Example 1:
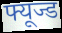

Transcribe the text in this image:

फ्यूज्ड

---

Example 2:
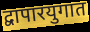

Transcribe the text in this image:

द्वापारयुगात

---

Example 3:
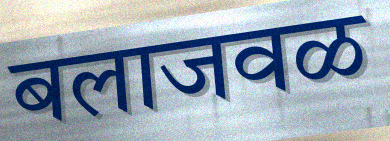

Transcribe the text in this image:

बलाजवळ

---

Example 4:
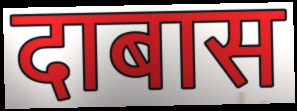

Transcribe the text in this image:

दाबास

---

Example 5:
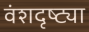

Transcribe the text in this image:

वंशदृष्ट्या